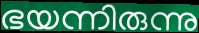
ഭയന്നിരുന്നു